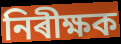
নিৰীক্ষক